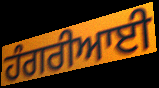
ਹੰਗਰੀਆਈ